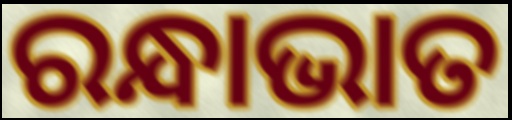
ରନ୍ଧାଭାତ